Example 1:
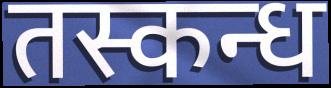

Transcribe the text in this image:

तस्कन्ध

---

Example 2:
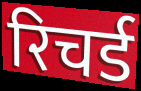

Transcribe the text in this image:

रिचर्ड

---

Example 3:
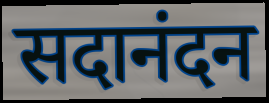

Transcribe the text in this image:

सदानंदन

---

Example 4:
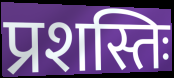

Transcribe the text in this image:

प्रशस्तिः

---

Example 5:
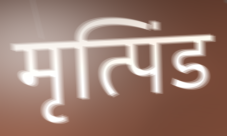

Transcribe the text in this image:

मृत्पिंड